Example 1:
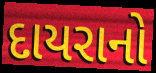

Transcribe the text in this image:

દાયરાનો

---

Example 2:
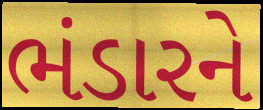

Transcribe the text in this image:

ભંડારને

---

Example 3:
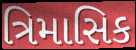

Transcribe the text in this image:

ત્રિમાસિક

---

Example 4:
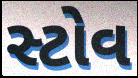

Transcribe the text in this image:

સ્ટોવ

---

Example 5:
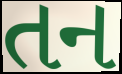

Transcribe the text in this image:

તન